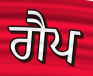
ਗੈਪ